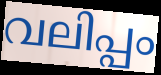
വലിപ്പം